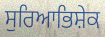
ਸੁਰਿਆਭਿਸ਼ੇਕ